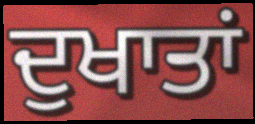
ਦੁਖਾਤਾਂ